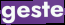
geste